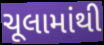
ચૂલામાંથી